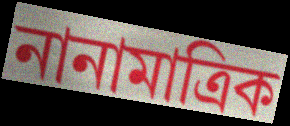
নানামাত্রিক